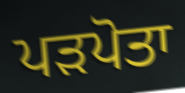
ਪੜਪੋਤਾ